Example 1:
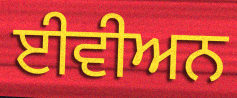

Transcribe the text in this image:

ਈਵੀਅਨ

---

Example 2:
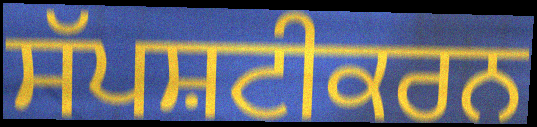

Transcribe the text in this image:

ਸੱਪਸ਼ਟੀਕਰਨ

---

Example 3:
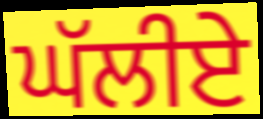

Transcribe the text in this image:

ਘੱਲੀਏ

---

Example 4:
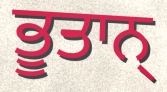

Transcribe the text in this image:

ਭੂਤਾਨ੍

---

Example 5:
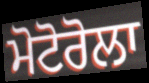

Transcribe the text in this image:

ਮੋਟੋਰੋਲਾ